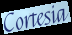
Cortesia